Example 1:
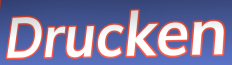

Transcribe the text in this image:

Drucken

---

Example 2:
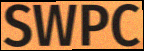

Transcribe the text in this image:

SWPC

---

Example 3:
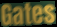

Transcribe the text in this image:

Gates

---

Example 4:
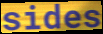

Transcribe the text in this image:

sides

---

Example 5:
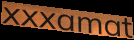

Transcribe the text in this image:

xxxamat